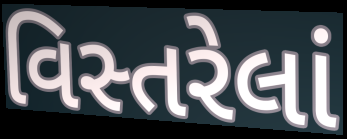
વિસ્તરેલાં